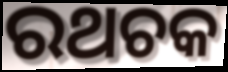
ରଥଚକ